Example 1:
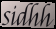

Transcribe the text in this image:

sidhh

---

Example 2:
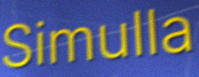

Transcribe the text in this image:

Simulla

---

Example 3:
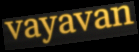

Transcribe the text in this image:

vayavan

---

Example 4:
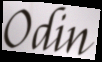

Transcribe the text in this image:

Odin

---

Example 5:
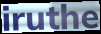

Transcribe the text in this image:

iruthe